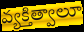
వ్యక్తిత్వాలూ